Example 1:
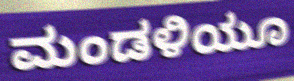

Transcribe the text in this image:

ಮಂಡಳಿಯೂ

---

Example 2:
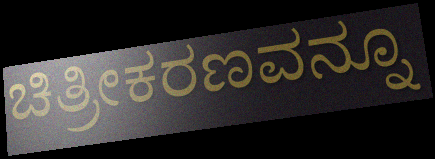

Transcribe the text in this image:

ಚಿತ್ರೀಕರಣವನ್ನೂ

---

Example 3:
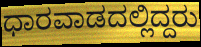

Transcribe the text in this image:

ಧಾರವಾಡದಲ್ಲಿದ್ದರು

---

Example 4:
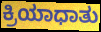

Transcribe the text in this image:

ಕ್ರಿಯಾಧಾತು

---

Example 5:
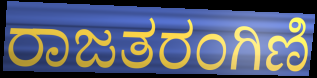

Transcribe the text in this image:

ರಾಜತರಂಗಿಣಿ